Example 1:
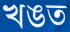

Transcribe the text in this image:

খঙত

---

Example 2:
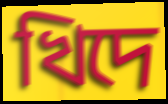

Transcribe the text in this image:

খিদে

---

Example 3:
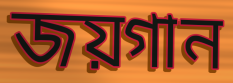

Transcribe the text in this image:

জয়গান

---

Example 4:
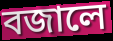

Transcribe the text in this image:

বজালে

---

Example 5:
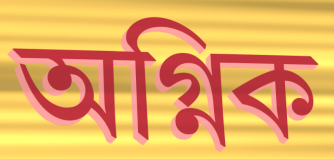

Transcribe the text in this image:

অগ্নিক